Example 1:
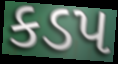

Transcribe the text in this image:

કડપ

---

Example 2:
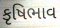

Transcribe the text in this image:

કૃષિભાવ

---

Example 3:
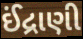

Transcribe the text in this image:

ઈંદ્રાણી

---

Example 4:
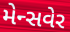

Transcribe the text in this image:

મેન્સવેર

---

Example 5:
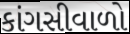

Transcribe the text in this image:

કાંગસીવાળો